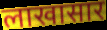
लाखासार